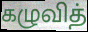
கழுவித்